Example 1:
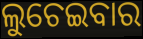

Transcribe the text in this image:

ଲୁଚେଇବାର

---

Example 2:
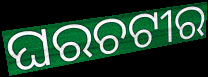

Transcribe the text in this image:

ଘରଚଟୀର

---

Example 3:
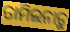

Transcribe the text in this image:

ତାମିଲନାଡ଼ୁ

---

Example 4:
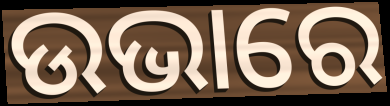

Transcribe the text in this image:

ଉଭାରେ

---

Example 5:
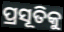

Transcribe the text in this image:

ପ୍ରସୂତିକୁ